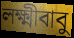
লক্ষ্মীবাবু